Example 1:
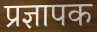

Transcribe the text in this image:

प्रज्ञापक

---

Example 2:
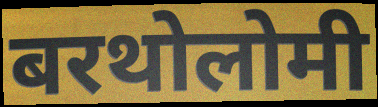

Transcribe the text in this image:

बरथोलोमी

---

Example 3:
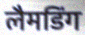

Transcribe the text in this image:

लैमडिंग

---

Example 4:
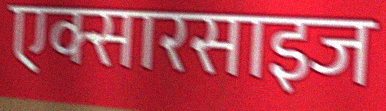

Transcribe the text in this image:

एक्सारसाइज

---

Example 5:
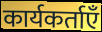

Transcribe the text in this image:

कार्यकर्ताएँ